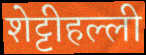
शेट्टीहल्ली